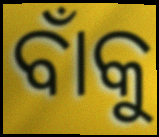
ବାଁକୁ